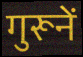
गुरूनें